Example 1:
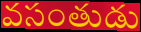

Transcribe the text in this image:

వసంతుడు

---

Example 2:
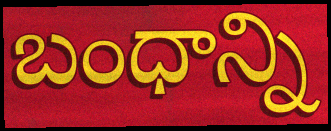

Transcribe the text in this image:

బంధాన్ని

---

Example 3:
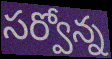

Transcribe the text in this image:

సర్వోన్న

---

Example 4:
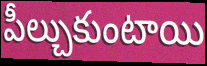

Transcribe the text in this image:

పీల్చుకుంటాయి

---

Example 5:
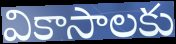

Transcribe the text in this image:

వికాసాలకు